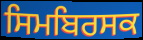
ਸਿਮਬਿਰਸਕ